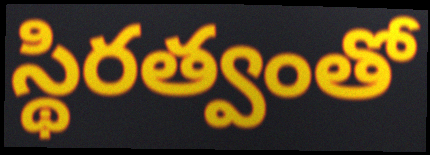
స్థిరత్వంతో